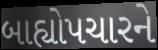
બાહ્યોપચારને